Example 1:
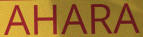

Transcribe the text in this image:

AHARA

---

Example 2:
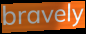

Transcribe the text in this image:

bravely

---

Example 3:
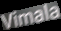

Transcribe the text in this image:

Vimala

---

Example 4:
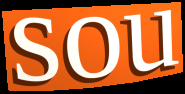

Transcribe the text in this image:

sou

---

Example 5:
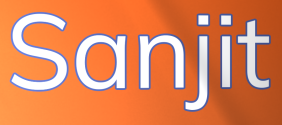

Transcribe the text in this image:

Sanjit